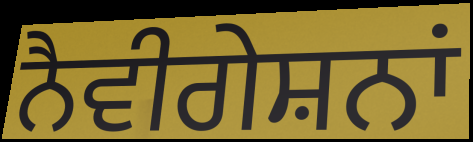
ਨੈਵੀਗੇਸ਼ਨਾਂ